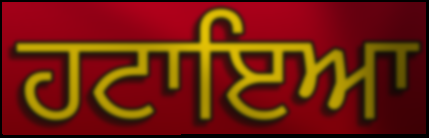
ਹਟਾਇਆ